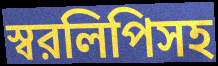
স্বরলিপিসহ